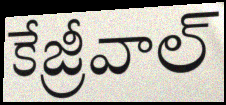
కేజ్రీవాల్